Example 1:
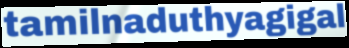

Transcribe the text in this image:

tamilnaduthyagigal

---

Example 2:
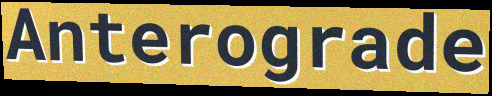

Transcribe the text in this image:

Anterograde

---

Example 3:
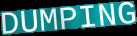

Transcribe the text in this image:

DUMPING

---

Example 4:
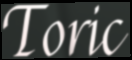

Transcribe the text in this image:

Toric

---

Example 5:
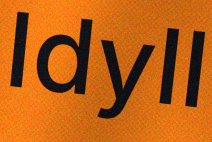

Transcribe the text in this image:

Idyll